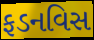
ફડનવિસ